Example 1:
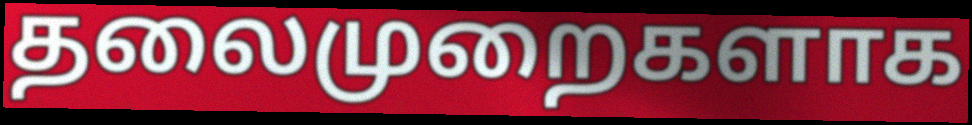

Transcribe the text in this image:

தலைமுறைகளாக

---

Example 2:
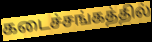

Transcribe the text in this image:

கடைச்சங்கத்தில்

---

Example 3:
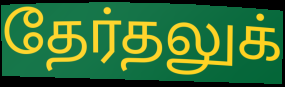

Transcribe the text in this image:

தேர்தலுக்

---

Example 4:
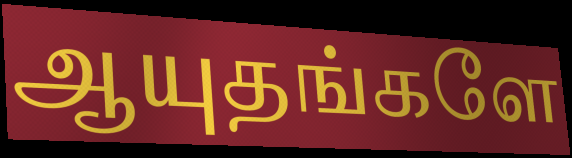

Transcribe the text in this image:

ஆயுதங்களே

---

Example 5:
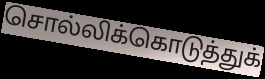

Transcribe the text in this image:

சொல்லிக்கொடுத்துக்